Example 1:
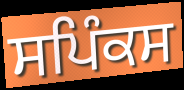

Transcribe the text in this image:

ਸਪਿੰਕਸ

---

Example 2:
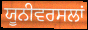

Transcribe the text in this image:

ਯੂਨੀਵਰਸਲਾਂ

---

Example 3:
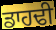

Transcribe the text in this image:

ਡਾਹਢੀ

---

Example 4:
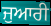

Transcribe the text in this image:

ਜੁਆਰੀ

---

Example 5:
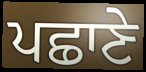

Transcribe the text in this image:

ਪਛਾਣੇ